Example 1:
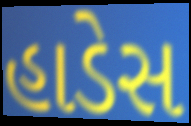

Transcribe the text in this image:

હાડેસ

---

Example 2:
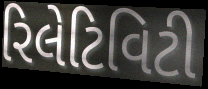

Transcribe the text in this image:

રિલેટિવિટી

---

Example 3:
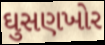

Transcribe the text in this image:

ઘુસણખોર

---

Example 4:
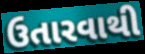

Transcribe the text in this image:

ઉતારવાથી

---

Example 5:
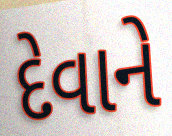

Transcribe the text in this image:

દેવાને